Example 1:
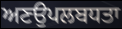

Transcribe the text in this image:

ਅਣਉਪਲਬਧਤਾ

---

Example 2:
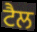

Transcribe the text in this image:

ਟੈਲ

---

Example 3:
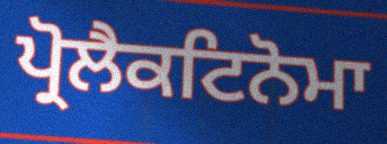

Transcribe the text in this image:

ਪ੍ਰੋਲੈਕਟਿਨੋਮਾ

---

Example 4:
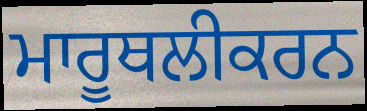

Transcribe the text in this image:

ਮਾਰੂਥਲੀਕਰਨ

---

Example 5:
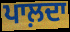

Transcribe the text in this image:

ਪਾਲ਼ਦਾ